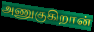
அணுகுகிறான்